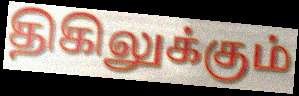
திகிலுக்கும்